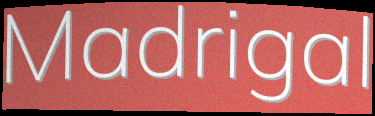
Madrigal